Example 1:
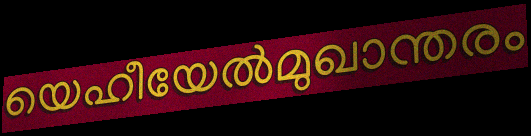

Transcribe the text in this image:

യെഹീയേൽമുഖാന്തരം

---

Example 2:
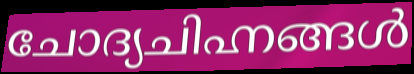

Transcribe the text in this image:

ചോദ്യചിഹ്നങ്ങൾ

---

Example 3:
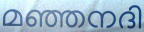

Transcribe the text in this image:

മഞ്ഞനദി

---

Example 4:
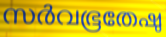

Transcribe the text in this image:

സർവഭൂതേഷു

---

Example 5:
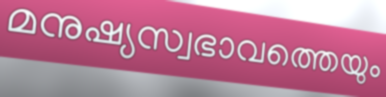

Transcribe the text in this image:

മനുഷ്യസ്വഭാവത്തെയും